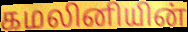
கமலினியின்